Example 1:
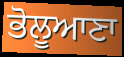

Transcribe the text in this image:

ਭੋਲੂਆਣਾ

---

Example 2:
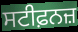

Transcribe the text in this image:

ਸਟੀਫ਼ਨਜ਼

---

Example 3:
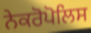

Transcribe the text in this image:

ਨੇਕਰੋਪੋਲਿਸ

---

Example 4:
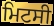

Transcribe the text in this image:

ਮਿਟਸੀ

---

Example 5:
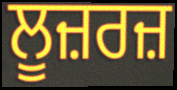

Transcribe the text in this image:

ਲੂਜ਼ਰਜ਼